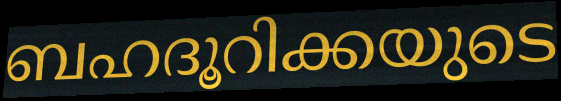
ബഹദൂറിക്കയുടെ